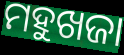
ମହୁଖଜା